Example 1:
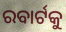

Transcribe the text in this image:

ରବାର୍ଟକୁ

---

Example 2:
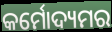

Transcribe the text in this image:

କର୍ମୋଦ୍ୟମର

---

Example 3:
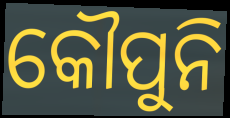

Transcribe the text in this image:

କୌପୁନି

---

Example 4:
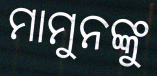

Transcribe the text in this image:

ମାମୁନଙ୍କୁ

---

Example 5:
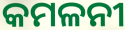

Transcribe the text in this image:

କମଳନୀ